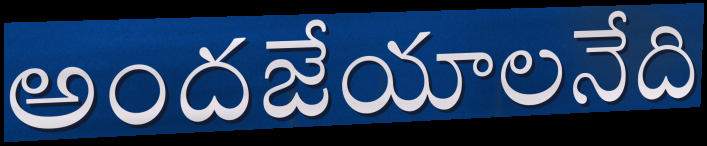
అందజేయాలనేది